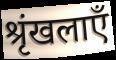
श्रृंखलाएँ